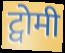
ट्वोमी